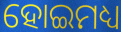
ହୋଇମଧ୍ୟ